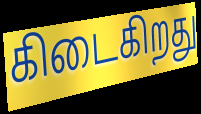
கிடைகிறது